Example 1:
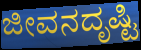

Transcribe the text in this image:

ಜೀವನದೃಷ್ಟಿ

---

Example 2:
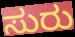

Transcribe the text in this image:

ಸುರು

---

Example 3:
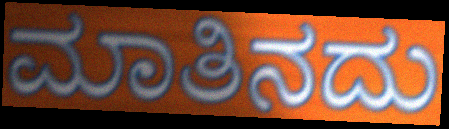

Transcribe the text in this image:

ಮಾತಿನದು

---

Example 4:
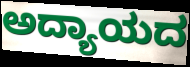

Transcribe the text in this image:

ಅದ್ಯಾಯದ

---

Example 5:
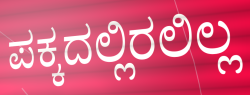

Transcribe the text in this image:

ಪಕ್ಕದಲ್ಲಿರಲಿಲ್ಲ